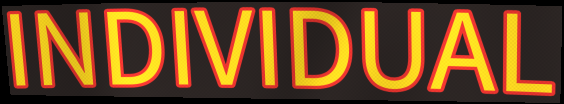
INDIVIDUAL